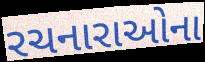
રચનારાઓના